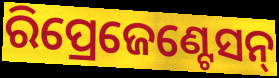
ରିପ୍ରେଜେଣ୍ଟେସନ୍